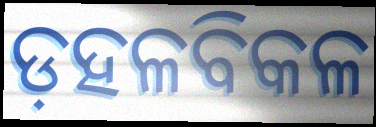
ଡ଼ହଳବିକଳ